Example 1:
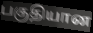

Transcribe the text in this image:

பகுதியான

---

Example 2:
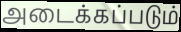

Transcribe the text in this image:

அடைக்கப்படும்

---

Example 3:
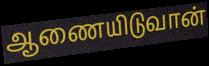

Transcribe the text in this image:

ஆணையிடுவான்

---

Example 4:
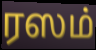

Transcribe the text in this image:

ரஸம்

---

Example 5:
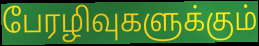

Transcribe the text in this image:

பேரழிவுகளுக்கும்